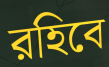
রহিবে